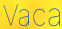
Vaca